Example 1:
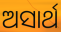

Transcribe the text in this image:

ଅସାର୍ଥ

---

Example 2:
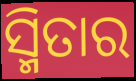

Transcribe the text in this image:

ସ୍ମିତାର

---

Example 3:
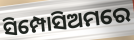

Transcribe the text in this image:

ସିମ୍ପୋସିଅମରେ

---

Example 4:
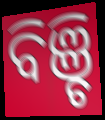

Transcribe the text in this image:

ବିଞ୍ଚି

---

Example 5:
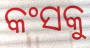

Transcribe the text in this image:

କଂସକୁ